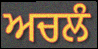
ਅਚਲੰ